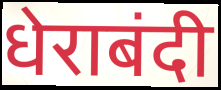
धेराबंदी